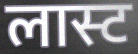
लास्ट